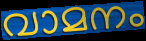
വാമനം